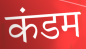
कंडम